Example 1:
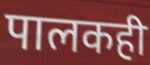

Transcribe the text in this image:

पालकही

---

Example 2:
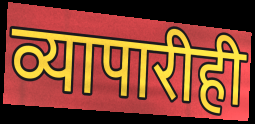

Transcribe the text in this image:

व्यापारीही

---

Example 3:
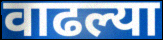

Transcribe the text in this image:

वाढल्या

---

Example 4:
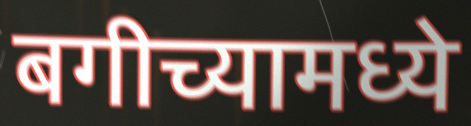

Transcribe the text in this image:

बगीच्यामध्ये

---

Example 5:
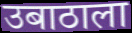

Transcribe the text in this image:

उबाठाला